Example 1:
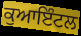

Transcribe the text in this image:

ਕੁਆਇੰਟਲ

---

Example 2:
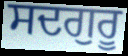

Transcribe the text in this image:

ਸਦਗੁਰੂ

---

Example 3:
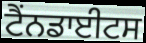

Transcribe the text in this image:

ਟੈਂਨਡਾਈਟਸ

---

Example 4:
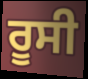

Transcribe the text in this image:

ਰੂਸੀ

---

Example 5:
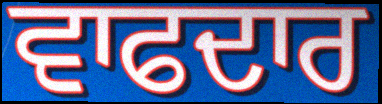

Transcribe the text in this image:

ਵਾਫਦਾਰ